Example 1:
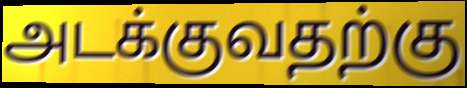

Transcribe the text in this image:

அடக்குவதற்கு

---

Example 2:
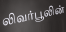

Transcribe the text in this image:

லிவர்பூலின்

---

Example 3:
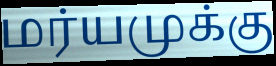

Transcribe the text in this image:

மர்யமுக்கு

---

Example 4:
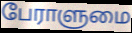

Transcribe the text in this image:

பேராளுமை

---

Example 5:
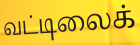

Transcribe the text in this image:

வட்டிலைக்